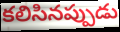
కలిసినప్పుడు